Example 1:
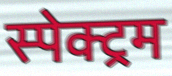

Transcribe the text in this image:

स्पेक्ट्रम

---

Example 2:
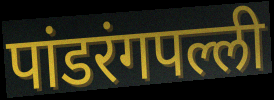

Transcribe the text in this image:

पांडरंगपल्ली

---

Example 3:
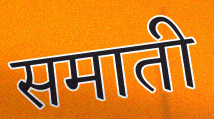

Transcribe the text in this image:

समाती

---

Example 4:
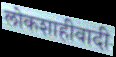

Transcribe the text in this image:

लोकशाहीवादी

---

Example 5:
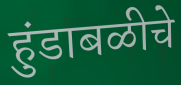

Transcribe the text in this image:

हुंडाबळीचे